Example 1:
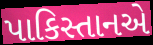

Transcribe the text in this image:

પાકિસ્તાનએ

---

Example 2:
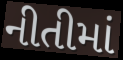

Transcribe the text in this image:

નીતીમાં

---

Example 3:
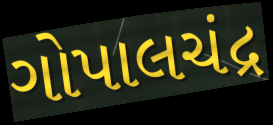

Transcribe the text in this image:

ગોપાલચંદ્ર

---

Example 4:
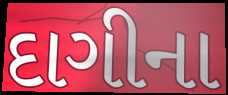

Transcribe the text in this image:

દાગીના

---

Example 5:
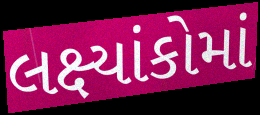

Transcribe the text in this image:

લક્ષ્યાંકોમાં